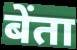
बेंता